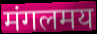
मंगलमय